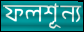
ফলশূন্য